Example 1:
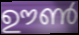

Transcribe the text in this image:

ഊൺ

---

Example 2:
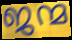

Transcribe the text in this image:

ജന്മ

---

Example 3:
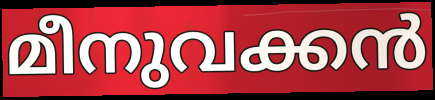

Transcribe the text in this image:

മീനുവക്കൻ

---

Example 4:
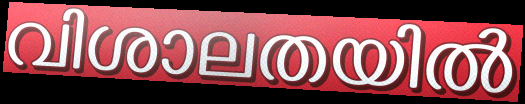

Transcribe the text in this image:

വിശാലതയിൽ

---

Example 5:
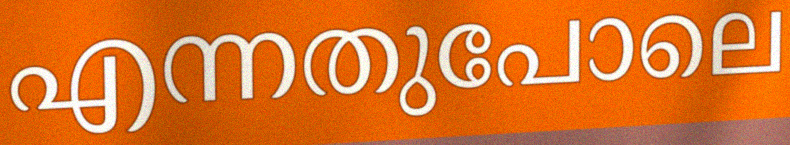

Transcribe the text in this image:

എന്നതുപോലെ